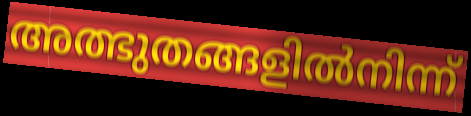
അത്ഭുതങ്ങളിൽനിന്ന്